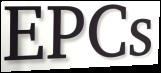
EPCs